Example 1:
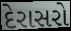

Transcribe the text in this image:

દેરાસરો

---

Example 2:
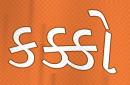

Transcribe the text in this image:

કક્કો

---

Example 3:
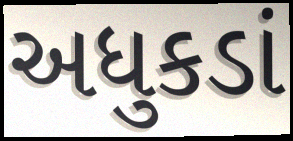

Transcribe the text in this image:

અધુકડાં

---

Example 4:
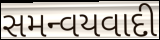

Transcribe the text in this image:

સમન્વયવાદી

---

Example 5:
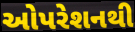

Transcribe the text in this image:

ઓપરેશનથી